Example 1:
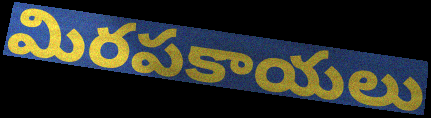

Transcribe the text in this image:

మిరపకాయలు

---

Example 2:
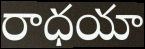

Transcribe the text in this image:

రాధయా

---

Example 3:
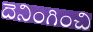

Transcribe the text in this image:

దెనింగించి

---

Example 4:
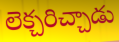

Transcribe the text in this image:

లెక్చరిచ్చాడు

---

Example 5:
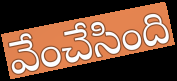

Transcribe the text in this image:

వేంచేసింది